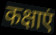
कक्षाएं